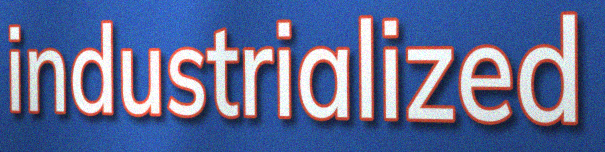
industrialized